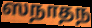
ஸநாதந